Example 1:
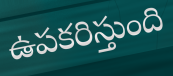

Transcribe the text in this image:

ఉపకరిస్తుంది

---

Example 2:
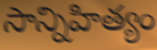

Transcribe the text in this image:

సాన్నిహిత్యం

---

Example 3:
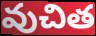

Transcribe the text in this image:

వుచిత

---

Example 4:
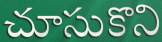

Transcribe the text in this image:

చూసుకొని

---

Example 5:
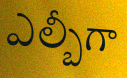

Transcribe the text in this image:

ఎల్బీగా